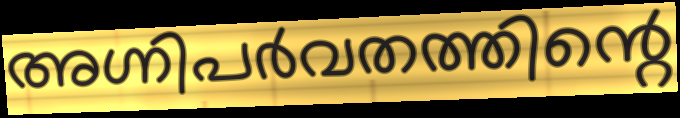
അഗ്നിപർവതത്തിന്റെ